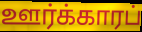
ஊர்க்காரப்